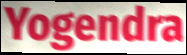
Yogendra